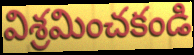
విశ్రమించకండి